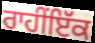
ਰਾਹੀਂਇੱਕ